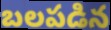
బలపడిన